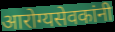
आरोग्यसेवकांनी